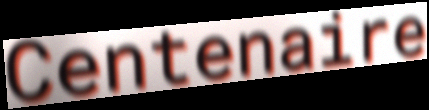
Centenaire